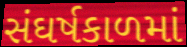
સંઘર્ષકાળમાં